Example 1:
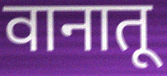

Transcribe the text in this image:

वानातू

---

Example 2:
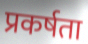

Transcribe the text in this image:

प्रकर्षता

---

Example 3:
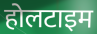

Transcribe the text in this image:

होलटाइम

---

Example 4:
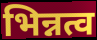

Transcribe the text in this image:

भिन्नत्व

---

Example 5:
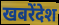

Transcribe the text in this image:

खबरेंदेश